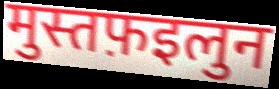
मुस्तफ़इलुन